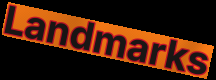
Landmarks